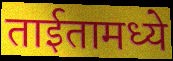
ताईतामध्ये